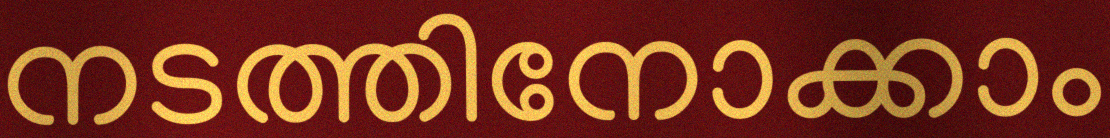
നടത്തിനോക്കാം